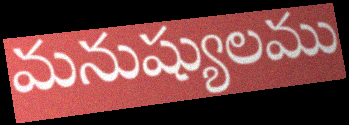
మనుష్యులము